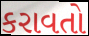
કરાવતો